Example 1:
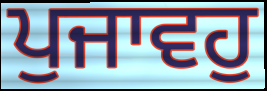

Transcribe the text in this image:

ਪੁਜਾਵਹੁ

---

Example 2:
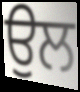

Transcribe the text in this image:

ਉਲ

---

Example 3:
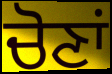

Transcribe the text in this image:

ਚੋਣਾਂ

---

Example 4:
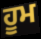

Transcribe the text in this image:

ਹੂਮ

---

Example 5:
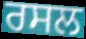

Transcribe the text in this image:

ਰਸਲ